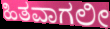
ಹಿತವಾಗಲೀ